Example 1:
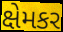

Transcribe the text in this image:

ક્ષેમકર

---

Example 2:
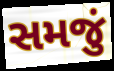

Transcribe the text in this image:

સમજું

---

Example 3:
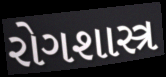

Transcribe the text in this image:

રોગશાસ્ત્ર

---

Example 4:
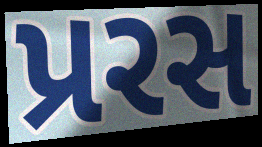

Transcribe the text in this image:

પ્રરસ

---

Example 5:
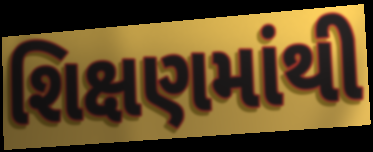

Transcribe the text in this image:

શિક્ષણમાંથી